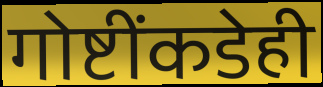
गोष्टींकडेही